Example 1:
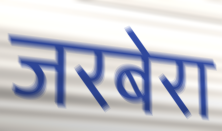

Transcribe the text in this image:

जरबेरा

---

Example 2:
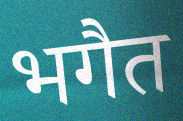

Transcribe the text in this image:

भगैत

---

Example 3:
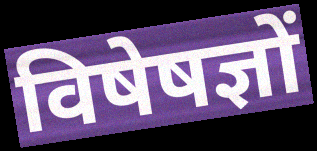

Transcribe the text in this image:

विषेषज्ञों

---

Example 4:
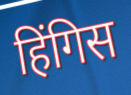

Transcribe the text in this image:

हिंगिस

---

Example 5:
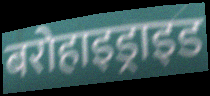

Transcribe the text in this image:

बरोहाइड्राइड